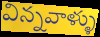
విన్నవాళ్ళు